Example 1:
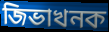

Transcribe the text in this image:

জিভাখনক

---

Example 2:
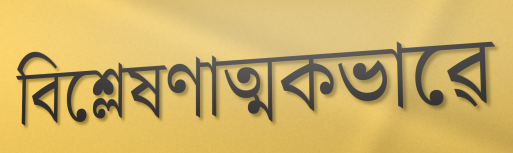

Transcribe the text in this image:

বিশ্লেষণাত্মকভাৱে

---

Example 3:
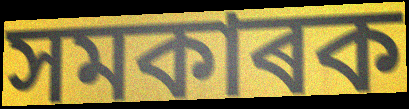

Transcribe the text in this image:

সমকাৰক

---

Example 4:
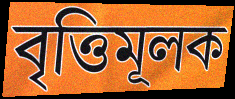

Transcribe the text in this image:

বৃত্তিমূলক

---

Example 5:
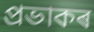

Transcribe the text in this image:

প্ৰভাকৰ